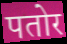
पतोर